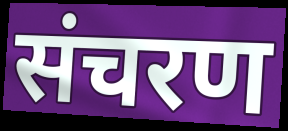
संचरण